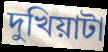
দুখিয়াটা